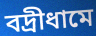
বদ্রীধামে